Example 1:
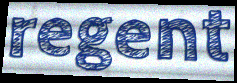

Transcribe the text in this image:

regent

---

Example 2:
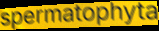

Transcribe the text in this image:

spermatophyta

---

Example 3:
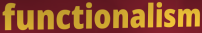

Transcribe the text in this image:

functionalism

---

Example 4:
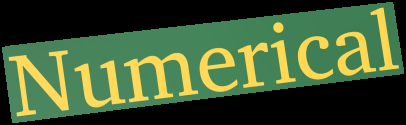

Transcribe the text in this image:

Numerical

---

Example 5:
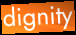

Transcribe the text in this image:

dignity